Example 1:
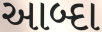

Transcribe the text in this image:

આબ્દા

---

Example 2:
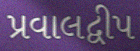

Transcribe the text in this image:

પ્રવાલદ્વીપ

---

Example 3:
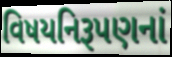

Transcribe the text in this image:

વિષયનિરૂપણનાં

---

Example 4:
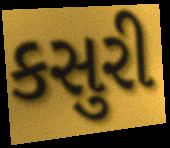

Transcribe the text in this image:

કસુરી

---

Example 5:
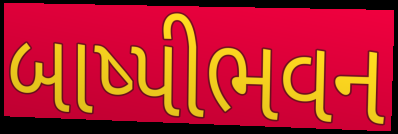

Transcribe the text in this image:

બાષ્પીભવન